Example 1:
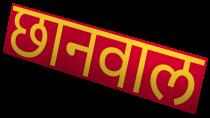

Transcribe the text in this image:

छानवाल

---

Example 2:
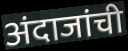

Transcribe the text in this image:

अंदाजांची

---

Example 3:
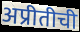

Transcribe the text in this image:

अप्रीतीची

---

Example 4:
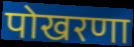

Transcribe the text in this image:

पोखरणा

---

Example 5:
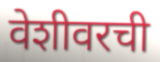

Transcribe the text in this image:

वेशीवरची